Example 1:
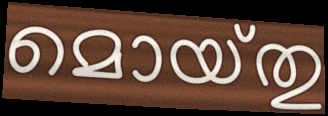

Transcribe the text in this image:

മൊയ്‌തു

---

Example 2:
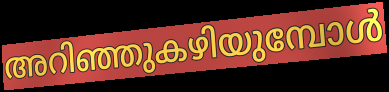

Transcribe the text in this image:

അറിഞ്ഞുകഴിയുമ്പോൾ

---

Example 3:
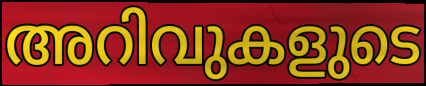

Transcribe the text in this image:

അറിവുകളുടെ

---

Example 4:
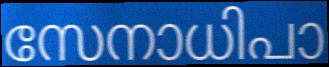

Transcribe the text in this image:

സേനാധിപാ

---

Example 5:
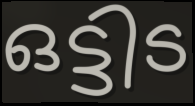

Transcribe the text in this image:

ഒട്ടിട